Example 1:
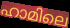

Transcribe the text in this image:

ഹാമിലെ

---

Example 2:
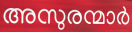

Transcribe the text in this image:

അസുരന്മാർ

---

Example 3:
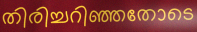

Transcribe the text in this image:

തിരിച്ചറിഞ്ഞതോടെ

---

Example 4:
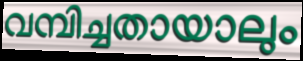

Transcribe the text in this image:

വമ്പിച്ചതായാലും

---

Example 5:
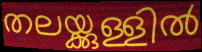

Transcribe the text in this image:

തലയ്ക്കുള്ളിൽ